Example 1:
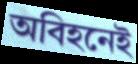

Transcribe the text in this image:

অবিহনেই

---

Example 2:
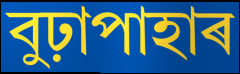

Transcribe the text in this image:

বুঢ়াপাহাৰ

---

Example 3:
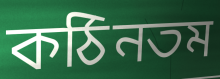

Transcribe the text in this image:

কঠিনতম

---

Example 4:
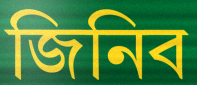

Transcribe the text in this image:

জিনিব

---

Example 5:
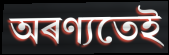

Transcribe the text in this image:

অৰণ্যতেই